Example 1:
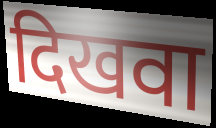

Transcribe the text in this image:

दिखवा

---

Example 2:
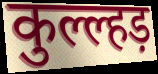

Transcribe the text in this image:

कुल्ल्हड़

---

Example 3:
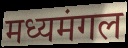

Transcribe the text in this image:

मध्यमंगल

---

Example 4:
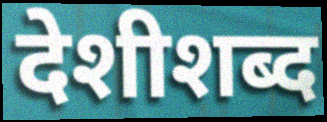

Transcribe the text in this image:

देशीशब्द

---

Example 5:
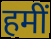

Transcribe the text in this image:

हमीं